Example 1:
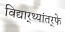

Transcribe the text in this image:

विद्यार्थ्यांतर्फे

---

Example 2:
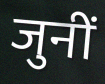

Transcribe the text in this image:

जुनीं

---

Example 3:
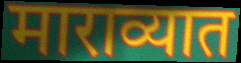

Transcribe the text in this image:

माराव्यात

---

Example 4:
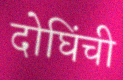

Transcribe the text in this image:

दोघिंची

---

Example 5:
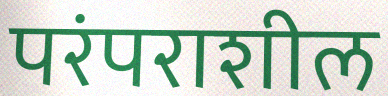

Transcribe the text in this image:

परंपराशील